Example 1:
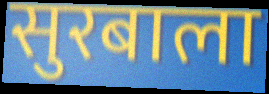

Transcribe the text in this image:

सुरबाला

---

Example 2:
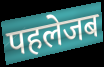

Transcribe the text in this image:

पहलेजब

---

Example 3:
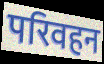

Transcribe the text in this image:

परिवहन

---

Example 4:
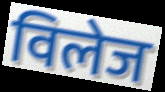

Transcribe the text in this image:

विलेज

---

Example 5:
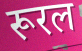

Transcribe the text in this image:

रूरल